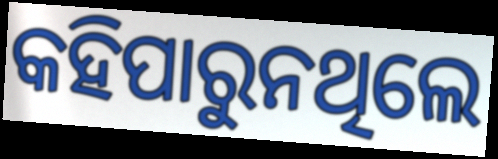
କହିପାରୁନଥିଲେ